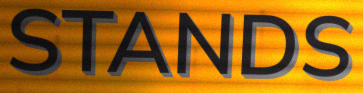
STANDS